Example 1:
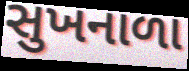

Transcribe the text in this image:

સુખનાળા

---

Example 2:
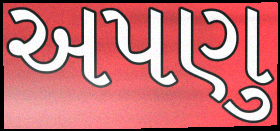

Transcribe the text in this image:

અપણુ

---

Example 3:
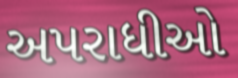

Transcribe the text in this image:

અપરાધીઓ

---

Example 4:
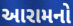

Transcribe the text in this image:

આરામનો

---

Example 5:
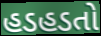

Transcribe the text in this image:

હડહડતો